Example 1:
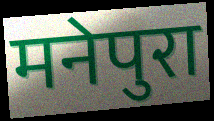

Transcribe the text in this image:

मनेपुरा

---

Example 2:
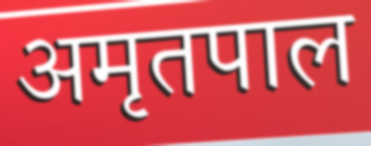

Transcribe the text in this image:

अमृतपाल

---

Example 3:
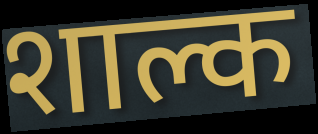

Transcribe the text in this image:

शाल्क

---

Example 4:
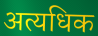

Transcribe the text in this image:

अत्यधिक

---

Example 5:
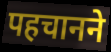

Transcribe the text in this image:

पहचानने